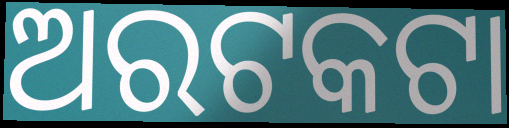
ଅରଟକଟା